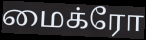
மைக்ரோ